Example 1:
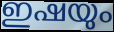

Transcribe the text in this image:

ഇഷയും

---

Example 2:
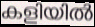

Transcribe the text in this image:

കളിയിൽ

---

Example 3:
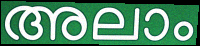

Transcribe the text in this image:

അലാം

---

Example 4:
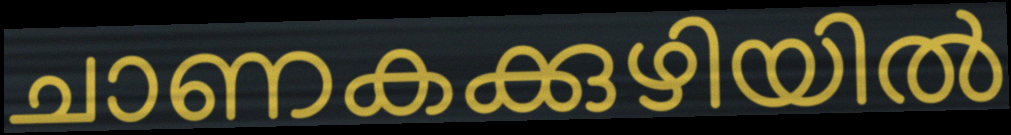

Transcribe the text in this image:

ചാണകക്കുഴിയിൽ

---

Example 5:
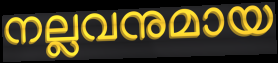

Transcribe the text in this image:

നല്ലവനുമായ